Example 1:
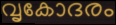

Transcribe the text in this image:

വൃകോദരം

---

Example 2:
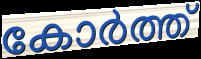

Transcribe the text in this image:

കോർത്ത്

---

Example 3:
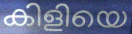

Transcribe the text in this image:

കിളിയെ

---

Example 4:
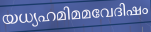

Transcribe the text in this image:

യധ്യഹമിമമവേദിഷം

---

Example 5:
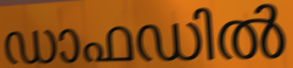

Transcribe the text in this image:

ഡാഫഡിൽ